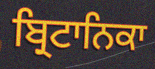
ਬ੍ਰਿਟਾਨਿਕਾ